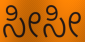
ಸೀಸೀ